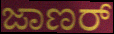
ಜಾಣರ್